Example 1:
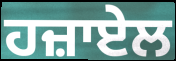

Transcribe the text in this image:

ਹਜ਼ਾਏਲ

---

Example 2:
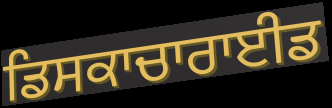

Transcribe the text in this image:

ਡਿਸਕਾਚਾਰਾਈਡ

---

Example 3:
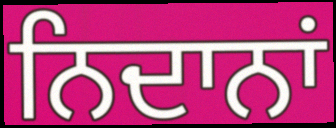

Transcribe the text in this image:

ਨਿਦਾਨਾਂ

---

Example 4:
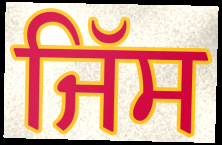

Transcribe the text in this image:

ਜਿੱਸ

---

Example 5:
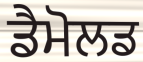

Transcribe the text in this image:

ਡੈਮੋਲਡ